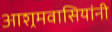
आश्रमवासियांनी